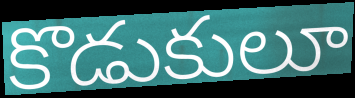
కొడుకులూ